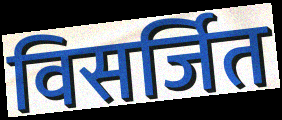
विसर्जित